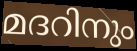
മദറിനും